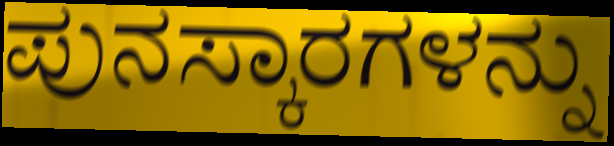
ಪುನಸ್ಕಾರಗಳನ್ನು